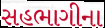
સહભાગીના